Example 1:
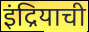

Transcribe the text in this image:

इंद्रियाची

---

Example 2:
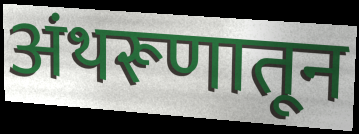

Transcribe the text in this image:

अंथरूणातून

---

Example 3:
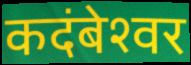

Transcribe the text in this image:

कदंबेश्वर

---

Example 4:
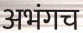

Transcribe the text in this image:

अभंगच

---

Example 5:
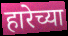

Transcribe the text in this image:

हारेच्या